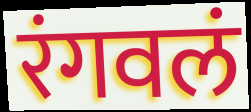
रंगवलं